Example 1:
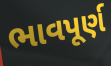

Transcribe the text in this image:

ભાવપૂર્ણ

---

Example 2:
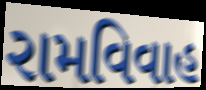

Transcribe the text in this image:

રામવિવાહ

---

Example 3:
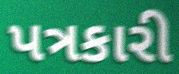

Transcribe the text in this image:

પત્રકારી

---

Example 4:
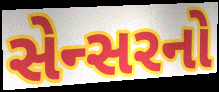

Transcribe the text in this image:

સેન્સરનો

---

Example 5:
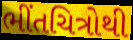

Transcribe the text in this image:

ભીંતચિત્રોથી